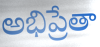
అభిప్రేతా